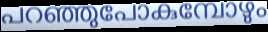
പറഞ്ഞുപോകുമ്പോഴും